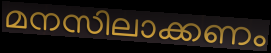
മനസിലാക്കണം